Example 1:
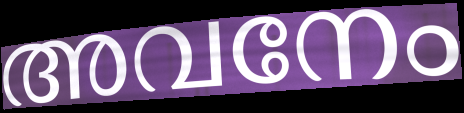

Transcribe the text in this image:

അവനേം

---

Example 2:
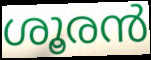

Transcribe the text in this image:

ശൂരൻ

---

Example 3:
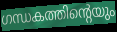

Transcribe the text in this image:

ഗന്ധകത്തിന്റെയും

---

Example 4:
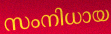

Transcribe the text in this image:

സംനിധായ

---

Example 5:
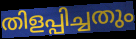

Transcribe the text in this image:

തിളപ്പിച്ചതും